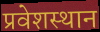
प्रवेशस्थान